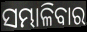
ସମ୍ଭାଳିବାର